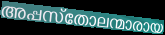
അപ്പസ്‌തോലന്മാരായ